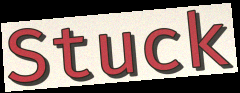
Stuck